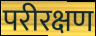
परीरक्षण